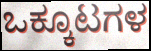
ಒಕ್ಕೂಟಗಳ